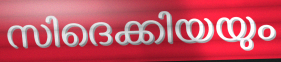
സിദെക്കിയയും